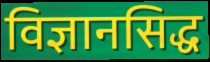
विज्ञानसिद्ध